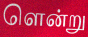
ளென்று